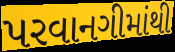
પરવાનગીમાંથી